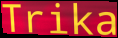
Trika